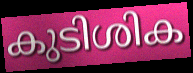
കുടിശിക